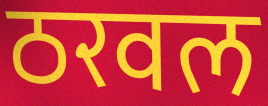
ठरवल